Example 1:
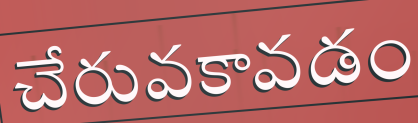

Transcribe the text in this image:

చేరువకావడం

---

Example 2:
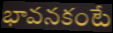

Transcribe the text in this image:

భావనకంటే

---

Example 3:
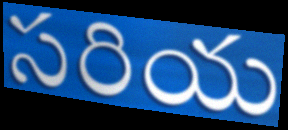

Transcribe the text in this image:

సరియ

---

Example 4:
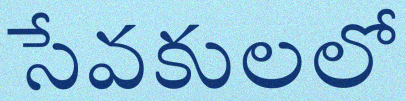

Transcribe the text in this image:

సేవకులలో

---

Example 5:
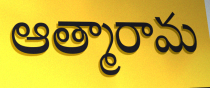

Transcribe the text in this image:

ఆత్మారామ